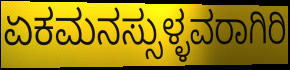
ಏಕಮನಸ್ಸುಳ್ಳವರಾಗಿರಿ